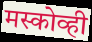
मस्कोव्ही